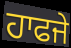
ਹਾਫਜੇ